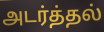
அடர்த்தல்